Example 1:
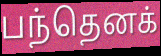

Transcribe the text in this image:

பந்தெனக்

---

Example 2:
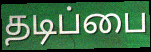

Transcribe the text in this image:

தடிப்பை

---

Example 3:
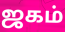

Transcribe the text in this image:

ஜகம்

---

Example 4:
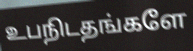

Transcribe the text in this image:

உபநிடதங்களே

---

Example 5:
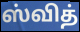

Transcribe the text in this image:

ஸ்வித்